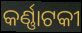
କର୍ଣ୍ଣାଟକୀ